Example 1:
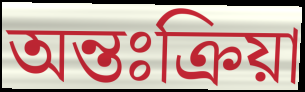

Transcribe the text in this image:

অন্তঃক্রিয়া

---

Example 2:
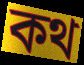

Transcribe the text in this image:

কথ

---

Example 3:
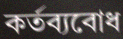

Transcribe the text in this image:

কর্তব্যবোধ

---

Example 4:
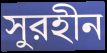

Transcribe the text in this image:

সুরহীন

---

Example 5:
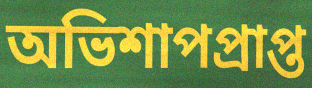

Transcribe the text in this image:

অভিশাপপ্রাপ্ত